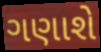
ગણાશે